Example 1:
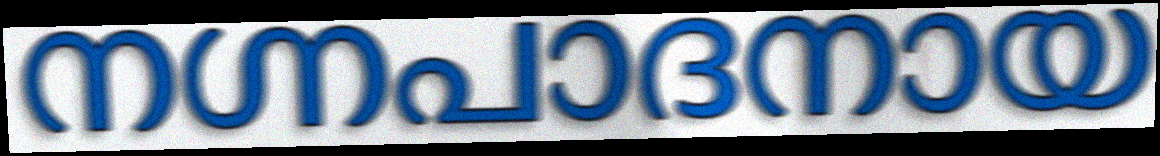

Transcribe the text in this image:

നഗ്നപാദനായ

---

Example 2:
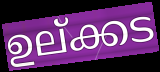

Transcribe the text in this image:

ഉല്ക്കട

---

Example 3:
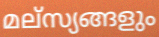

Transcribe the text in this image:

മല്സ്യങ്ങളും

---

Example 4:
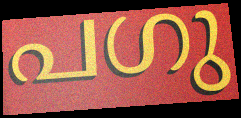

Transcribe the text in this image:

പഗു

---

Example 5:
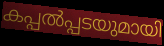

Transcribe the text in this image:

കപ്പൽപ്പടയുമായി